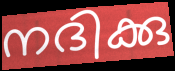
നദിക്കു